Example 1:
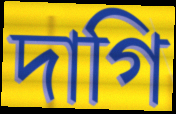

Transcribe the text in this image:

দাগি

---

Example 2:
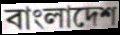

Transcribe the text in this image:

বাংলাদেশ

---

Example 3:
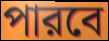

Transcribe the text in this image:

পারবে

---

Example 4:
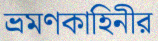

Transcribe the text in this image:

ভ্রমণকাহিনীর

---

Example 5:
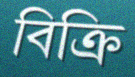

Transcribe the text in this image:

বিক্রি